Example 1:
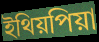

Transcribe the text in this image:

ইথিয়পিয়া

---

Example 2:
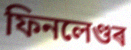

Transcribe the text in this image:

ফিনলেণ্ডৰ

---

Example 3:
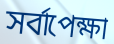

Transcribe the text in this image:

সৰ্বাপেক্ষা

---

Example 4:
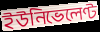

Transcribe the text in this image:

ইউনিভেলেণ্ট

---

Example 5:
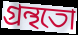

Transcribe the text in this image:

গ্ৰন্থতো